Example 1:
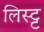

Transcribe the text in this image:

लिस्ट्ट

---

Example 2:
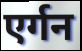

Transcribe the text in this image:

एर्गन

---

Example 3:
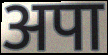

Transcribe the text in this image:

अपा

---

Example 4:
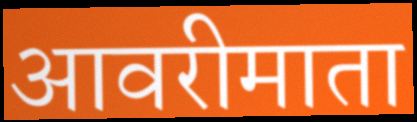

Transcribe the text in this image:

आवरीमाता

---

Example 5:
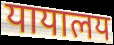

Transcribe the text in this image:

यायालय